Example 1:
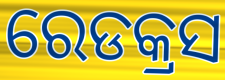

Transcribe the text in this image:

ରେଡକ୍ରସ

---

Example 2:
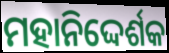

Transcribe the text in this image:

ମହାନିଦ୍ଦେର୍ଶକ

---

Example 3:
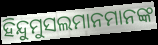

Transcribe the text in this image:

ହିନ୍ଦୁମୁସଲମାନମାନଙ୍କ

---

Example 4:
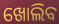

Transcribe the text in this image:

ଖୋଲିବ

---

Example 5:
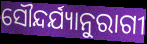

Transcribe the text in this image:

ସୌନ୍ଦର୍ଯ୍ୟାନୁରାଗୀ